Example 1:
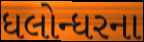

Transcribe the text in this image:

ધલોન્ધરના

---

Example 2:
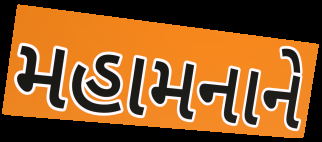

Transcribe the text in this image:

મહામનાને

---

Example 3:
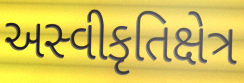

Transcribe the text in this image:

અસ્વીકૃતિક્ષેત્ર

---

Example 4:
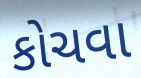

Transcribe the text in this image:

કોચવા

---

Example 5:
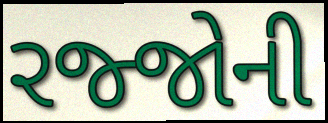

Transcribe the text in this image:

રજ્જોની